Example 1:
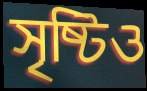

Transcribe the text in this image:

সৃষ্টিও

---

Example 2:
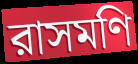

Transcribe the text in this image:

রাসমণি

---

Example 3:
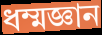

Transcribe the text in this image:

ধম্মজ্ঞান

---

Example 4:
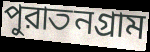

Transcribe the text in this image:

পুরাতনগ্রাম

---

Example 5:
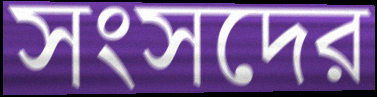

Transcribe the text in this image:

সংসদের